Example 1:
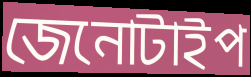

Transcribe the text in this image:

জেনোটাইপ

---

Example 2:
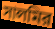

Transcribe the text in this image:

সালমির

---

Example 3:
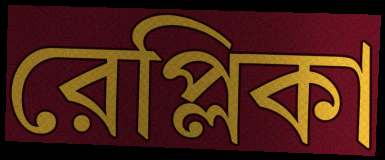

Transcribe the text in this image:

রেপ্লিকা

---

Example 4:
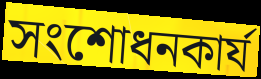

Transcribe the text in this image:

সংশোধনকার্য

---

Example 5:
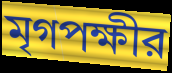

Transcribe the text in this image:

মৃগপক্ষীর